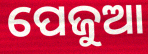
ପେଜୁଆ